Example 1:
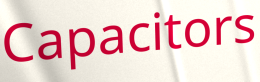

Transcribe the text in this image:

Capacitors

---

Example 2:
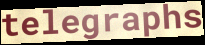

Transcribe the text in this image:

telegraphs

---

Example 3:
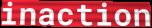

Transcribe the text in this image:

inaction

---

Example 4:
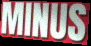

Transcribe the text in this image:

MINUS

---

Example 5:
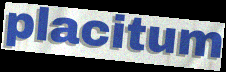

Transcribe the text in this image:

placitum